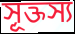
সূক্তস্য